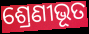
ଶ୍ରେଣୀଭୂତ